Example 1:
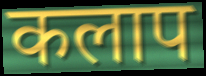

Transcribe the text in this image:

कलाप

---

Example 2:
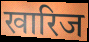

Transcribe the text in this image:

खारिज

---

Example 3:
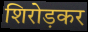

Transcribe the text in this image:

शिरोड़कर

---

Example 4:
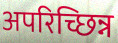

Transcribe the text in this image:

अपरिच्छिन्न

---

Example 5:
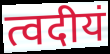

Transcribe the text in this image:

त्वदीयं